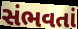
સંભવતાં